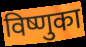
विष्णुका